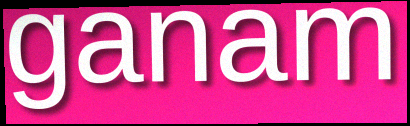
ganam